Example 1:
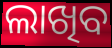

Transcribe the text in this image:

ଲାଖିବ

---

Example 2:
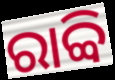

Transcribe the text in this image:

ରାବ୍ବି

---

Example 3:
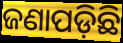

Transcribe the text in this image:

ଜଣାପଡ଼ିଛି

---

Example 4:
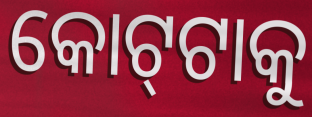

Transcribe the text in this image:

କୋଟ୍‌ଟାକୁ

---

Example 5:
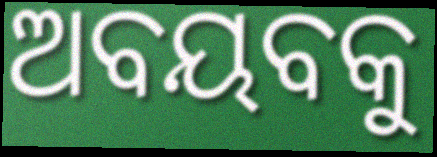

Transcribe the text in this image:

ଅବୟବକୁ